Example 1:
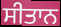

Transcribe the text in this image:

ਸੀਤਾਨ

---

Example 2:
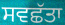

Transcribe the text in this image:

ਸਵਛੱਤਾ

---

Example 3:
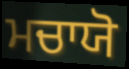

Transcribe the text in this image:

ਮਚਾਯੋ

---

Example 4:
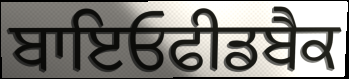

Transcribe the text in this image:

ਬਾਇਓਫੀਡਬੈਕ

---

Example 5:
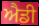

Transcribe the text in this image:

ਐਡੀ